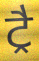
ट्रै